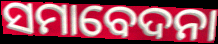
ସମାବେଦନା